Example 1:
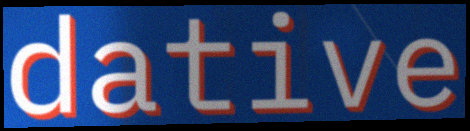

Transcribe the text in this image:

dative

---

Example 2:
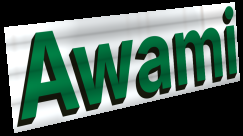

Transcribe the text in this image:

Awami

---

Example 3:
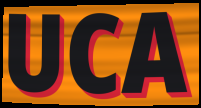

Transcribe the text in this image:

UCA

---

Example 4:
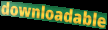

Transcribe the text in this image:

downloadable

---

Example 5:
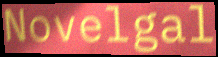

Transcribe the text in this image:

Novelgal